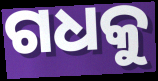
ଗଧକୁ